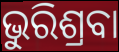
ଭୁରିଶ୍ରବା